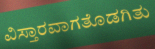
ವಿಸ್ತಾರವಾಗತೊಡಗಿತು